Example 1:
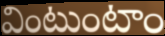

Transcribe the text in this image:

వింటుంటాం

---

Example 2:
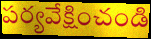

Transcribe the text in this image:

పర్యవేక్షించండి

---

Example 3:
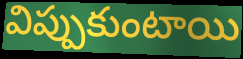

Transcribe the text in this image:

విప్పుకుంటాయి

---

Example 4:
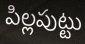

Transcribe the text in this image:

పిల్లపుట్టు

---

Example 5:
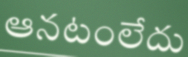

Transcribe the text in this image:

ఆనటంలేదు